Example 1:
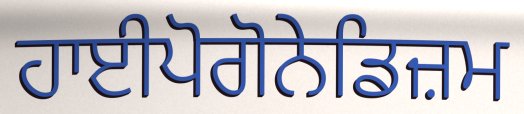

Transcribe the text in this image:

ਹਾਈਪੋਗੋਨੇਡਿਜ਼ਮ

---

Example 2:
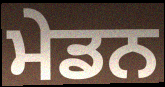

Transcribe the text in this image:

ਮੇਡਨ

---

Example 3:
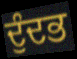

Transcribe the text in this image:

ਦੁੰਦਭ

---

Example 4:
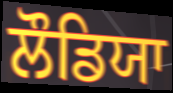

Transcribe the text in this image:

ਲੌਡਿਯਾ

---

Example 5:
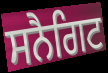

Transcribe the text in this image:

ਸਨੈਗਿਟ